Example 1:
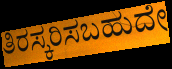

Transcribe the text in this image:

ತಿರಸ್ಕರಿಸಬಹುದೇ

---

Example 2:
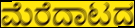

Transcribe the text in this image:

ಮೆರೆದಾಟದ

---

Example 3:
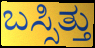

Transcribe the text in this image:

ಬಸ್ಸಿತ್ತು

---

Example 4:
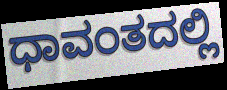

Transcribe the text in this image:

ಧಾವಂತದಲ್ಲಿ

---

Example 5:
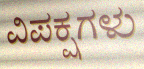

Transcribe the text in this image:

ವಿಪಕ್ಷಗಳು